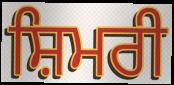
ਸ਼ਿਮਰੀ